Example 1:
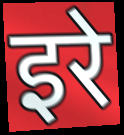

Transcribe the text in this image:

इरे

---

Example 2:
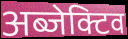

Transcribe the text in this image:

अब्जेक्टिव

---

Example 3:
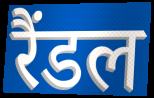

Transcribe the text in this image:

रैंडल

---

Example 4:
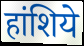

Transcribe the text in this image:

हांशिये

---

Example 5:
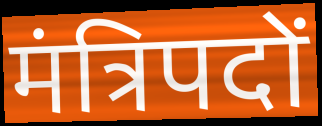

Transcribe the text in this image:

मंत्रिपदों